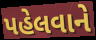
પહેલવાને